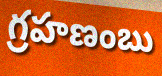
గ్రహణంబు